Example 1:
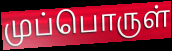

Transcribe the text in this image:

முப்பொருள்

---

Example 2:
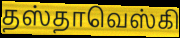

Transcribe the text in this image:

தஸ்தாவெஸ்கி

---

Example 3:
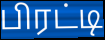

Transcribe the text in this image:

பிரட்டி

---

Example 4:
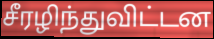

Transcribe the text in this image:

சீரழிந்துவிட்டன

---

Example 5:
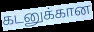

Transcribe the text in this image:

கடனுக்கான